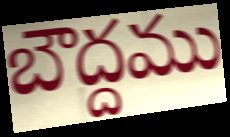
బౌద్దము